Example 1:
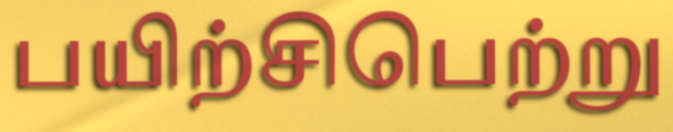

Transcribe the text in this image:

பயிற்சிபெற்று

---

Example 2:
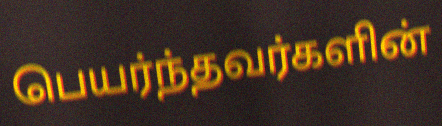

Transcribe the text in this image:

பெயர்ந்தவர்களின்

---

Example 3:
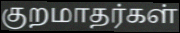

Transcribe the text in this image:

குறமாதர்கள்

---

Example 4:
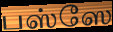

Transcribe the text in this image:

பஸ்ஸே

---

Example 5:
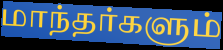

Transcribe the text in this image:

மாந்தர்களும்